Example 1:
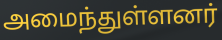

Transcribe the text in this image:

அமைந்துள்ளனர்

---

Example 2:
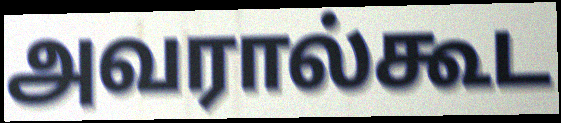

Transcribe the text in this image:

அவரால்கூட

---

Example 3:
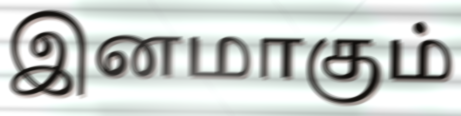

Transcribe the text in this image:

இனமாகும்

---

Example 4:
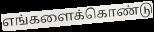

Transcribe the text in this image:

எங்களைக்கொண்டு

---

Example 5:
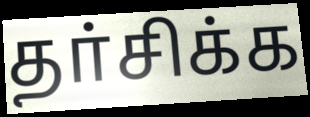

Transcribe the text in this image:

தர்சிக்க